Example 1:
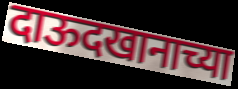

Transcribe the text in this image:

दाऊदखानाच्या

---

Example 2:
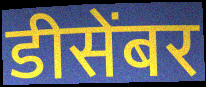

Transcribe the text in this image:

डीसेंबर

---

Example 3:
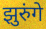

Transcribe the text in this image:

झुरुंगे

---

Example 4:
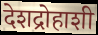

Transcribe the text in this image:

देशद्रोहाशी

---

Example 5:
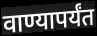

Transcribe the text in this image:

वाण्यापर्यंत